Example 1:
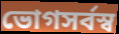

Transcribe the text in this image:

ভোগসর্বস্ব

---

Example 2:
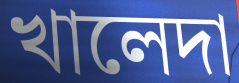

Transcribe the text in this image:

খালেদা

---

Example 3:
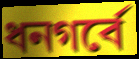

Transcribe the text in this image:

ধনগর্বে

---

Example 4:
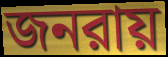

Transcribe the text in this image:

জনরায়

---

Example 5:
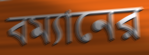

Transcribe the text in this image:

বম্যানের